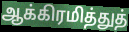
ஆக்கிரமித்துத்